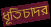
ধূতিচাদর